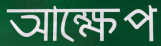
আক্ষেপ